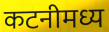
कटनीमध्य